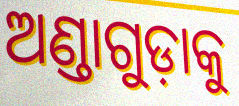
ଅଣ୍ଡାଗୁଡ଼ାକୁ